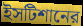
ইসটিশানের